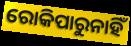
ରୋକିପାରୁନାହିଁ